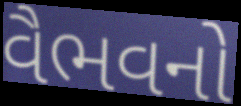
વૈભવનો